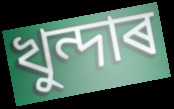
খুন্দাৰ